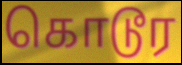
கொடூர